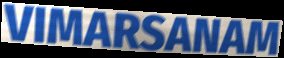
VIMARSANAM